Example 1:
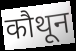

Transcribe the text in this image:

कौथून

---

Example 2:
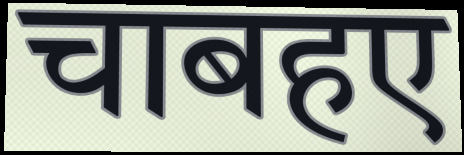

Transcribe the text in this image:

चाबहए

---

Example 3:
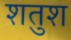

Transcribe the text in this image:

शतुश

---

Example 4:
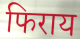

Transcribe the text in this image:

फिराय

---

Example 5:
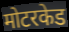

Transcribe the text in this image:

मोटरकेड